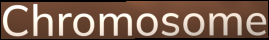
Chromosome